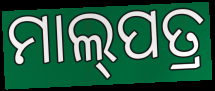
ମାଲ୍‌ପତ୍ର